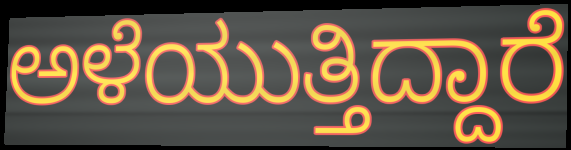
ಅಳೆಯುತ್ತಿದ್ದಾರೆ